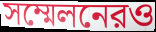
সম্মেলনেরও